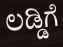
ಲಡ್ಡಿಗೆ